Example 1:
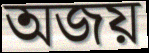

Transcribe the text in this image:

অজয়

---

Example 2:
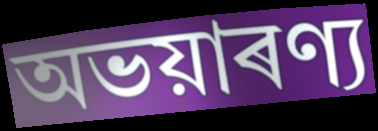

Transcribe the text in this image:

অভয়াৰণ্য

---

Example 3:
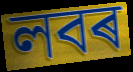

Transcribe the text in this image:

লবৰ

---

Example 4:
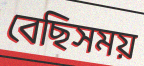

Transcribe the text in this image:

বেছিসময়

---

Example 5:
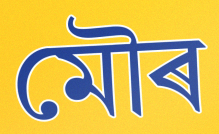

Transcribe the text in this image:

মৌৰ